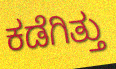
ಕಡೆಗಿತ್ತು